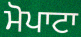
ਮੋਪਾਟਾ